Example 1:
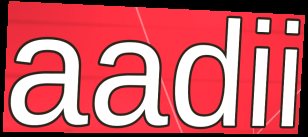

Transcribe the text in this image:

aadii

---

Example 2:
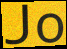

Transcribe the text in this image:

Jo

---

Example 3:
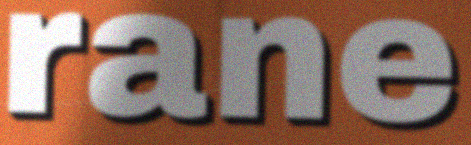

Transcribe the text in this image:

rane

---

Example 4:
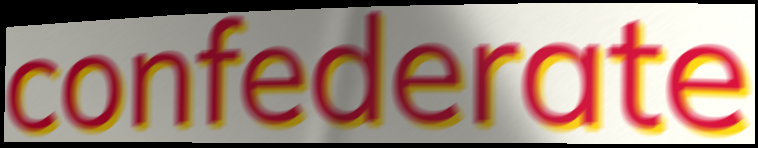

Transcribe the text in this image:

confederate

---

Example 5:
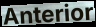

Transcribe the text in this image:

Anterior